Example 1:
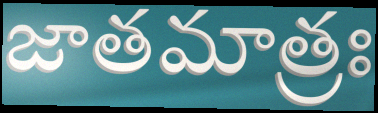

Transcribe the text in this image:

జాతమాత్రః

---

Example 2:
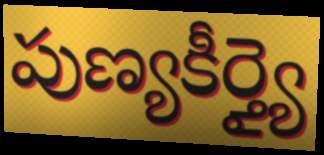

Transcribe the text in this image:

పుణ్యకీర్త్యై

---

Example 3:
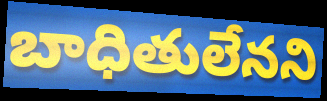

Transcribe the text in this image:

బాధితులేనని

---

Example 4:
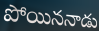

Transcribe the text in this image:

పోయిననాడు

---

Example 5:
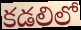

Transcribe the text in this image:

కడలిలో